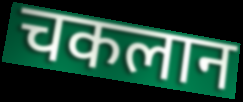
चकलान